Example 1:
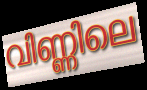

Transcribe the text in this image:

വിണ്ണിലെ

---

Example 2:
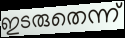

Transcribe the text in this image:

ഇടരുതെന്ന്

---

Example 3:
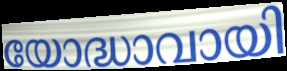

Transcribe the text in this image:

യോദ്ധാവായി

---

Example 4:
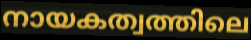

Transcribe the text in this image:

നായകത്വത്തിലെ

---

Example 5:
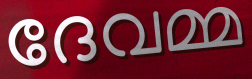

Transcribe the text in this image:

ദേവമ്മ